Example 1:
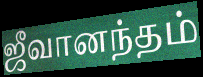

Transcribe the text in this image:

ஜீவானந்தம்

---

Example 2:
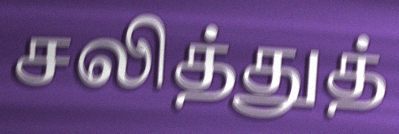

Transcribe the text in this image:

சலித்துத்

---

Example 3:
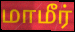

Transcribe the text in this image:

மாமீர்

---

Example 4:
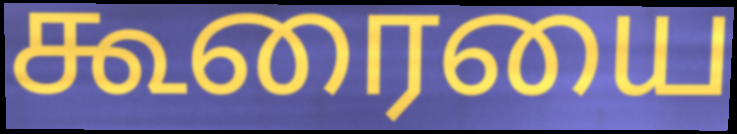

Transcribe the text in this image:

கூரையை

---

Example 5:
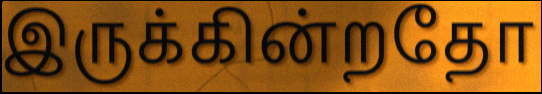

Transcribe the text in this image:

இருக்கின்றதோ